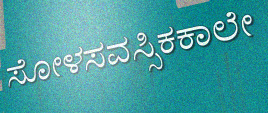
ಸೋಳಸವಸ್ಸಿಕಕಾಲೇ